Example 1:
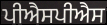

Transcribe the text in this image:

ਪੀਐਸਪੀਐਸ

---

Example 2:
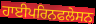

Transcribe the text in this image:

ਹਾਈਪਰਿਨਫਲੇਸਨ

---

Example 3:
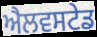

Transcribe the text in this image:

ਐਲਵਸਟੇਡ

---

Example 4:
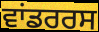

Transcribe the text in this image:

ਵਾਂਡਰਰਸ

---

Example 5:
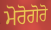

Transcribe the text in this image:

ਮੋਰੋਗੋਰੋ